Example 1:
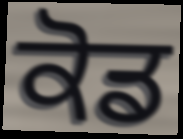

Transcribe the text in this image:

ਕੋਡ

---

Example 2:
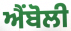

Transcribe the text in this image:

ਐਂਬੋਲੀ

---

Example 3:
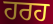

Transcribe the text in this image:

ਹਰਹ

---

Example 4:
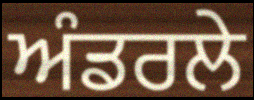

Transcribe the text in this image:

ਅੰਡਰਲੇ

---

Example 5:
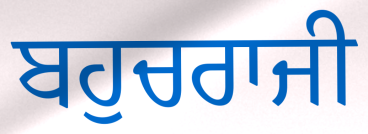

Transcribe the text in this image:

ਬਹੁਚਰਾਜੀ